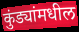
कुंड्यांमधील